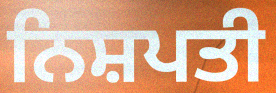
ਨਿਸ਼ਪਤੀ